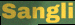
Sangli